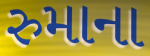
રુમાના